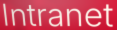
Intranet